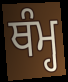
ਥੰਮ੍ਹ